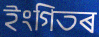
ইংগিতৰ